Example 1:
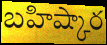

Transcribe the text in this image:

బహిష్కార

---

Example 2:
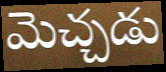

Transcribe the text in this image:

మెచ్చడు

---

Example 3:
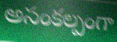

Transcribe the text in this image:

అసంకల్పంగా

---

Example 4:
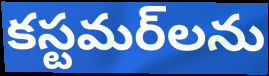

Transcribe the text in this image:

కస్టమర్‌లను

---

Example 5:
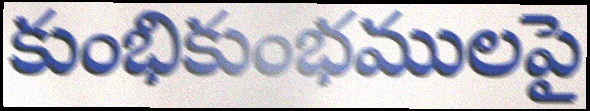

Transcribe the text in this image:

కుంభికుంభములపై